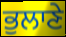
ਭੁਲਾਣੇ